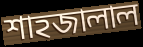
শাহজালাল